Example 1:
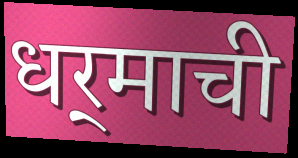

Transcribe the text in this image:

धर्माची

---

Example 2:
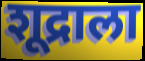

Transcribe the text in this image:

शूद्राला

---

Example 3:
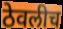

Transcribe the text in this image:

ठेवलीच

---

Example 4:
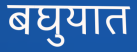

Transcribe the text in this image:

बघुयात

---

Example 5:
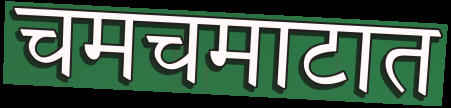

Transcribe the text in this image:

चमचमाटात